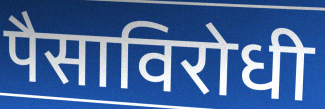
पैसाविरोधी